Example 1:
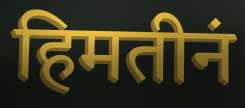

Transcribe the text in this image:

हिमतीनं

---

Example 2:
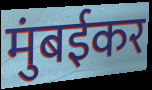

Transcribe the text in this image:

मुंबईकर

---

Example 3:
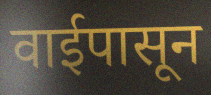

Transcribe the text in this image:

वाईपासून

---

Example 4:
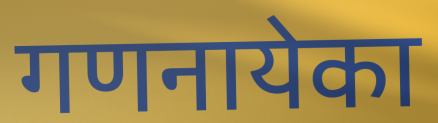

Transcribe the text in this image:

गणनायेका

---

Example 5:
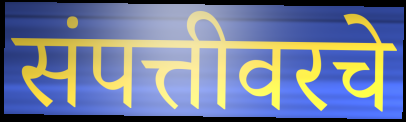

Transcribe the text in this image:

संपत्तीवरचे